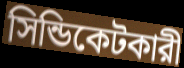
সিন্ডিকেটকারী